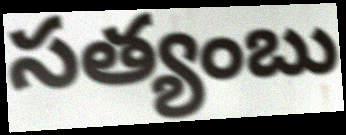
సత్యంబు